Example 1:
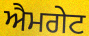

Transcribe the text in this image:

ਐਮਗੇਟ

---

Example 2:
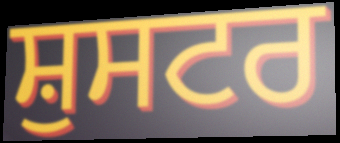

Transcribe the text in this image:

ਸ਼ੁਸਟਰ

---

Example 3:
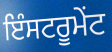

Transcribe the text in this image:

ਇੰਸਟਰੂਮੇਂਟ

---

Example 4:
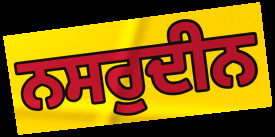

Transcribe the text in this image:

ਨਸਰੁਦੀਨ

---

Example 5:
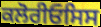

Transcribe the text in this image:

ਕਲੋਰੀਓਸਿਸ